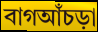
বাগআঁচড়া